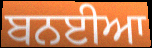
ਬਨਈਆ